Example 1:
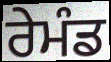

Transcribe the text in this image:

ਰੇਮੰਡ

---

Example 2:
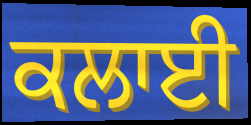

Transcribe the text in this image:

ਕਲਾਈ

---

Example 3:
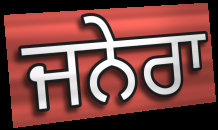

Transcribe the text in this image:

ਜਨੇਰਾ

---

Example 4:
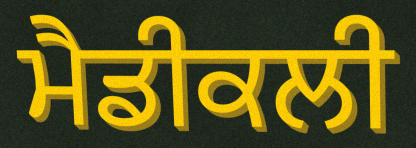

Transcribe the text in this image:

ਮੈਡੀਕਲੀ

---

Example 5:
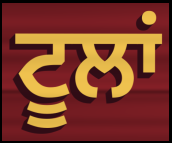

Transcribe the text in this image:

ਟੂਲਾਂ